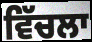
ਵਿੱਚਲਾ